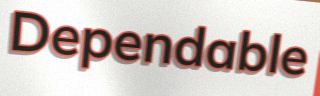
Dependable